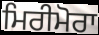
ਮਿਰੀਮੋਰਾ